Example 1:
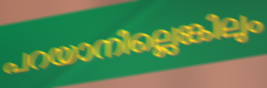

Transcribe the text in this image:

പറയാനില്ലെങ്കിലും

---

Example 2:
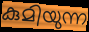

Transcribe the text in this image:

കുമിയുന്ന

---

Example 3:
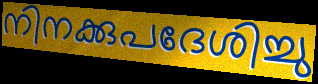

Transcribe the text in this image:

നിനക്കുപദേശിച്ചു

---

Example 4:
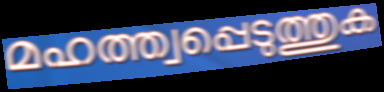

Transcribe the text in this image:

മഹത്ത്വപ്പെടുത്തുക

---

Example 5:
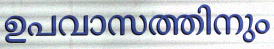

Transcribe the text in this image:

ഉപവാസത്തിനും